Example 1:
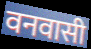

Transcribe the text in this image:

वनवासी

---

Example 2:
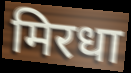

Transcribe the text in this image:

मिरधा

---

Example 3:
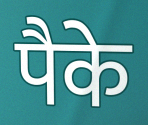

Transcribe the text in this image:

पैके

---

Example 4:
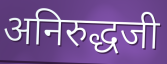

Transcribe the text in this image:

अनिरुद्धजी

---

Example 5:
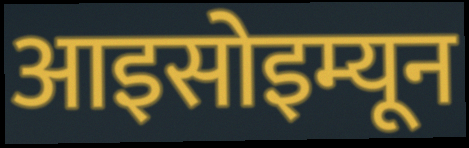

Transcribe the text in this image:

आइसोइम्यून